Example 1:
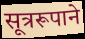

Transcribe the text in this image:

सूत्ररूपाने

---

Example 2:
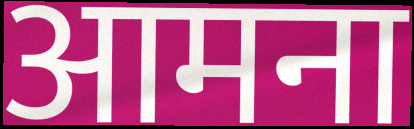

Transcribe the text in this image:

आमना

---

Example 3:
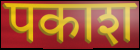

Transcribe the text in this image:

पकाश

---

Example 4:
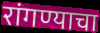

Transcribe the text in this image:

रांगण्याचा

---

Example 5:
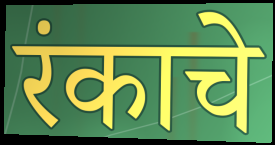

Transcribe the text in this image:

रंकाचे